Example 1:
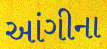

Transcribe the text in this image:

આંગીના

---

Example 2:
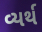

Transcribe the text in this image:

વ્યર્થ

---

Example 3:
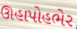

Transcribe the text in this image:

ઊહાપોહભેર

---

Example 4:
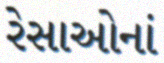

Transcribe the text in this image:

રેસાઓનાં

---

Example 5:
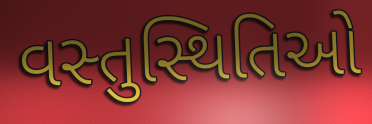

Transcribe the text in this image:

વસ્તુસ્થિતિઓ